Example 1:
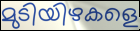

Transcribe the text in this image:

മുടിയിഴകളെ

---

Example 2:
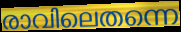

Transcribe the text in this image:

രാവിലെതന്നെ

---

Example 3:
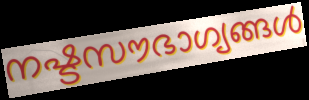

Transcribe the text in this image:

നഷ്ടസൗഭാഗ്യങ്ങൾ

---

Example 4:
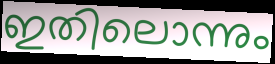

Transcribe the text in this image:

ഇതിലൊന്നും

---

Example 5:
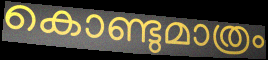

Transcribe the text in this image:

കൊണ്ടുമാത്രം